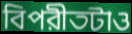
বিপরীতটাও